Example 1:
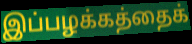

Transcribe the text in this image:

இப்பழக்கத்தைக்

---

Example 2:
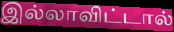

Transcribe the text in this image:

இல்லாவிட்டால்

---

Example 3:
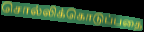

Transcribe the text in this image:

சொல்லிக்கொடுப்பதை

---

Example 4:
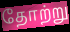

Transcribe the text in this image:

தோற்று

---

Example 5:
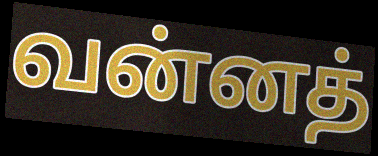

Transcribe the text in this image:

வன்னத்